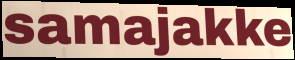
samajakke